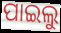
ପାଇଲୁ